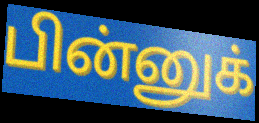
பின்னுக்